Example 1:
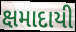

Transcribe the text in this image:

ક્ષમાદાયી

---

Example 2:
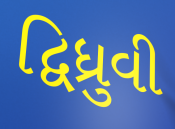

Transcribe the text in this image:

દ્વિધ્રુવી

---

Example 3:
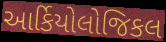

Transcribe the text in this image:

આર્કિયોલોજિકલ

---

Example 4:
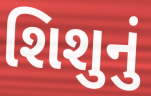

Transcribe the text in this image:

શિશુનું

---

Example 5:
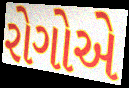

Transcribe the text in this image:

રોગોએ